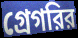
গ্রেগরির